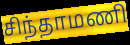
சிந்தாமணி